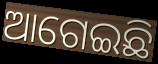
ଆଗେଇଛି